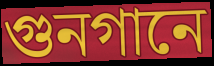
গুনগানে